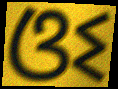
ଓଽ